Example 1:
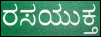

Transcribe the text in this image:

ರಸಯುಕ್ತ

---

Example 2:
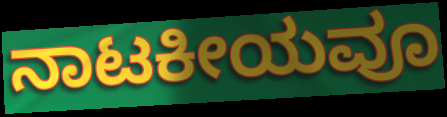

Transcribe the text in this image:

ನಾಟಕೀಯವೂ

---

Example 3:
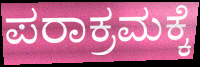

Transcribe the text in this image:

ಪರಾಕ್ರಮಕ್ಕೆ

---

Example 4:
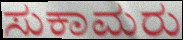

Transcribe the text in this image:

ಸುಕಾಮರು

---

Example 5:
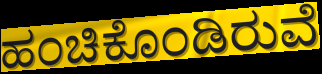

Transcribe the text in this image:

ಹಂಚಿಕೊಂಡಿರುವೆ